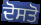
ਦੋਸਤੋ